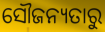
ସୌଜନ୍ୟତାରୁ